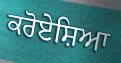
ਕਰੋਏਸ਼ਿਆ